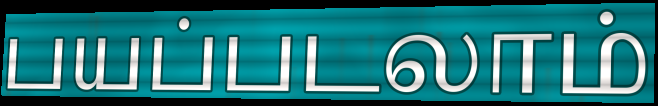
பயப்படலாம்